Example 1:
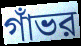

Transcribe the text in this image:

গাঁভর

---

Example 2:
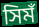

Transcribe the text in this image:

সিমঁ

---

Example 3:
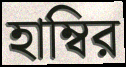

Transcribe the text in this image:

হাম্বির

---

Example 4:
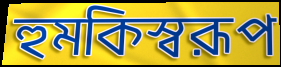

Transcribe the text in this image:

হুমকিস্বরূপ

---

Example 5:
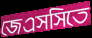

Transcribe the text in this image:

জেএসসিতে